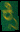
ಕ್ಸಿ